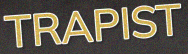
TRAPIST